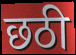
छठी